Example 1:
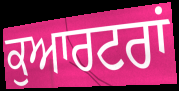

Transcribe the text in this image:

ਕੁਆਰਟਰਾਂ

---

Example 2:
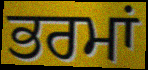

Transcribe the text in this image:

ਭਰਮਾਂ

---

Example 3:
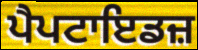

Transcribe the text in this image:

ਪੈਪਟਾਇਡਜ਼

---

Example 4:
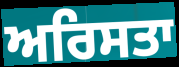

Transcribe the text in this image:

ਅਰਿਸਤਾ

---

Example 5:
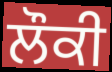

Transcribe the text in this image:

ਲੌਕੀ